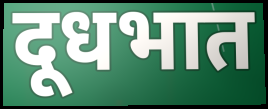
दूधभात